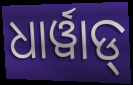
ଧାର୍ୱାଡ୍